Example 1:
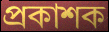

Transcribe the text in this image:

প্রকাশক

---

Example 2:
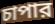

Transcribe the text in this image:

চাপার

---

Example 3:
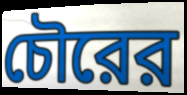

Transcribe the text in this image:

চৌরের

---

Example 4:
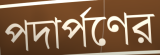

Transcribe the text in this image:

পদার্পণের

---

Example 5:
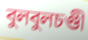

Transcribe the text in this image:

বুলবুলচণ্ডী